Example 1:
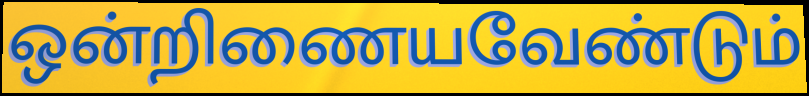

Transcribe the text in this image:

ஒன்றிணையவேண்டும்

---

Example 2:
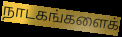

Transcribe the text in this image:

நாடகங்களைக்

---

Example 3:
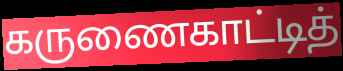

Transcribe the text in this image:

கருணைகாட்டித்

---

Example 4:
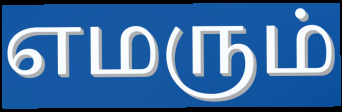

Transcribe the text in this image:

எமரும்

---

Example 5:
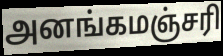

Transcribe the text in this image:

அனங்கமஞ்சரி